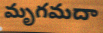
మృగమదా